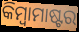
କିମ୍ୱାମାଷ୍ଟର